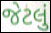
જેટલું